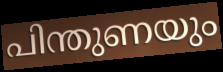
പിന്തുണയും